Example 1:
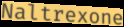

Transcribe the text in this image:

Naltrexone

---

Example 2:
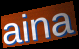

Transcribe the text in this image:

aina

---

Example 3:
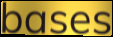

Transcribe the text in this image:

bases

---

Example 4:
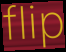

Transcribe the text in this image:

flip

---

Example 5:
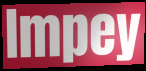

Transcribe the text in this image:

Impey